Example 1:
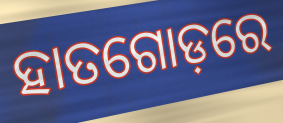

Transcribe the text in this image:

ହାତଗୋଡ଼ରେ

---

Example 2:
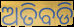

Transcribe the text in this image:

ଅତିବଡି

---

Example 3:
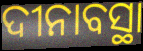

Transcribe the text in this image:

ଦୀନାବସ୍ଥା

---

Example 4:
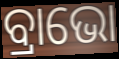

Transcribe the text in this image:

ବ୍ରାଭୋ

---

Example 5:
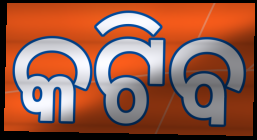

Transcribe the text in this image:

କଟିବ